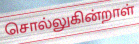
சொல்லுகின்றாள்